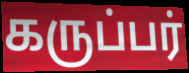
கருப்பர்